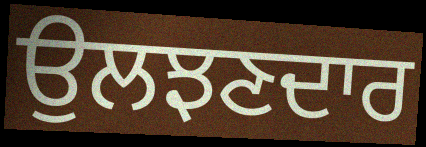
ਉਲਝਣਦਾਰ